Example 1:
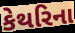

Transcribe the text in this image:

કેથરિના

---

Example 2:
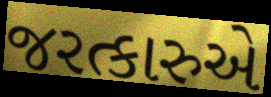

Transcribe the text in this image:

જરત્કારુએ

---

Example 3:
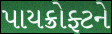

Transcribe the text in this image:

પાયક્રોફ્ટને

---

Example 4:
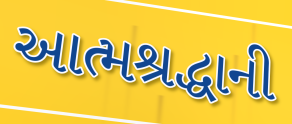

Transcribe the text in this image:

આત્મશ્રદ્ધાની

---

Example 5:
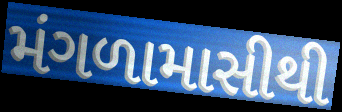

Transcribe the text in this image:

મંગળામાસીથી